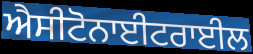
ਐਸੀਟੋਨਾਈਟਰਾਈਲ